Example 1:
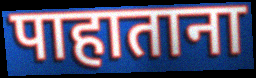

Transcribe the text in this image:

पाहाताना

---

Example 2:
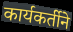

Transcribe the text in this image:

कार्यकर्तीने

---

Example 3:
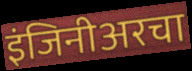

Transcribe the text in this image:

इंजिनीअरचा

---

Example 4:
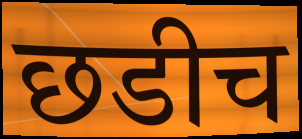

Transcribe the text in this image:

छडीच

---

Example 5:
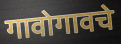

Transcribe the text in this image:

गावोगावचे